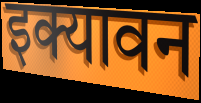
इक्‍यावन